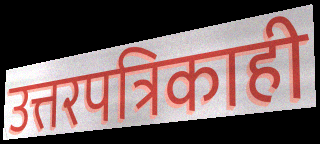
उत्तरपत्रिकाही